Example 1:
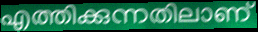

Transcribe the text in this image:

എത്തിക്കുന്നതിലാണ്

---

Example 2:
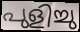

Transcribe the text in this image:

പുളിച്ചു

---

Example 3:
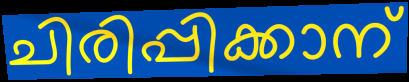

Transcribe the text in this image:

ചിരിപ്പിക്കാന്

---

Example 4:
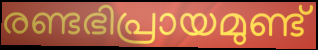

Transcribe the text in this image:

രണ്ടഭിപ്രായമുണ്ട്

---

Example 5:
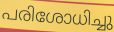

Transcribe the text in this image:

പരിശോധിച്ചു